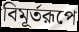
বিমূর্তরূপে